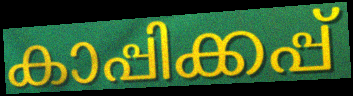
കാപ്പിക്കപ്പ്